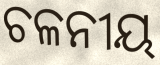
ଚଳନୀୟ